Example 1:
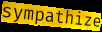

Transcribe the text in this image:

sympathize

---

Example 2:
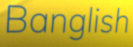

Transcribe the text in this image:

Banglish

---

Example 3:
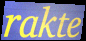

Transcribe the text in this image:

rakte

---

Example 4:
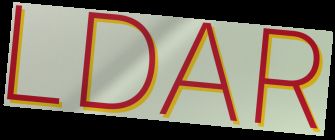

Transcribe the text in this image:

LDAR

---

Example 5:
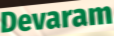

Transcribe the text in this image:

Devaram